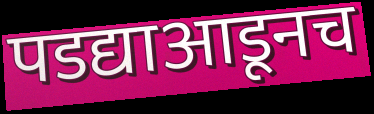
पडद्याआडूनच